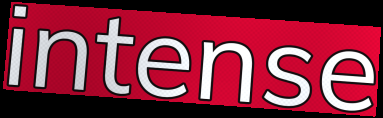
intense